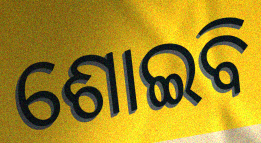
ଶୋଇବି